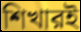
শিখারই